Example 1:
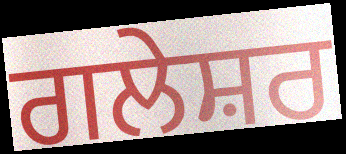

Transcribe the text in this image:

ਗਲੇਸ਼ਰ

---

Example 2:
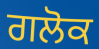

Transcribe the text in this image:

ਗਲੋਕ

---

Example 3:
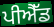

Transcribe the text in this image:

ਪੀਐੱਡ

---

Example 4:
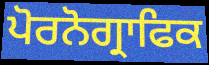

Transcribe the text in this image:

ਪੋਰਨੋਗ੍ਰਾਫਿਕ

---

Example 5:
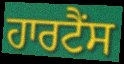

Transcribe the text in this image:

ਹਾਰਟੈਂਸ